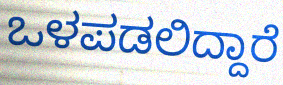
ಒಳಪಡಲಿದ್ದಾರೆ